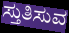
ಸ್ತುತಿಸುವ